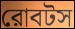
রোবটস